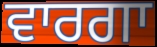
ਵਾਰਗਾ